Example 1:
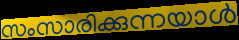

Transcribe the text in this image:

സംസാരിക്കുന്നയാൾ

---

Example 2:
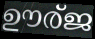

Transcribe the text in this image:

ഊര്ജ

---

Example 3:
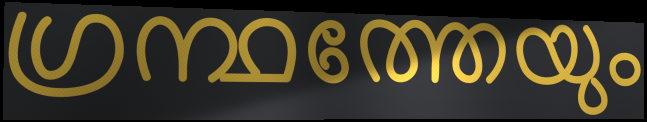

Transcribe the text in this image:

ഗ്രന്ഥത്തേയും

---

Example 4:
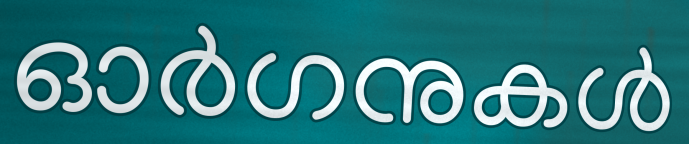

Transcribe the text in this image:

ഓർഗനുകൾ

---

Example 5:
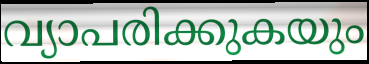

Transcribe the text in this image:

വ്യാപരിക്കുകയും